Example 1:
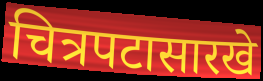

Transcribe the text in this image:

चित्रपटासारखे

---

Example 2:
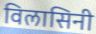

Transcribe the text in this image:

विलासिनी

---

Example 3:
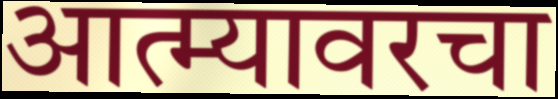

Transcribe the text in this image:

आत्म्यावरचा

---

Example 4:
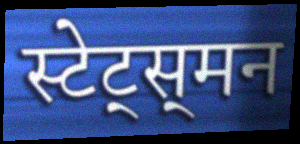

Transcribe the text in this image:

स्टेट्स्‌मन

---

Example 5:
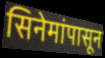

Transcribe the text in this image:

सिनेमांपासून